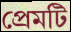
প্রেমটি